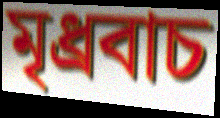
মৃধ্রবাচ